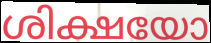
ശിക്ഷയോ